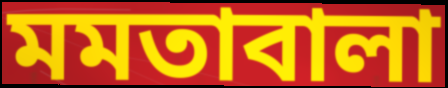
মমতাবালা